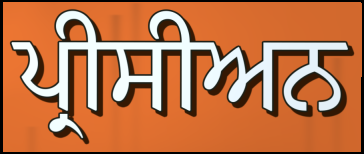
ਪ੍ਰੀਸੀਅਨ